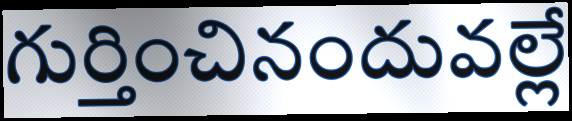
గుర్తించినందువల్లే